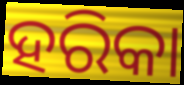
ହରିକା